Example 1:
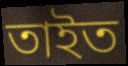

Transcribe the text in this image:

তাইত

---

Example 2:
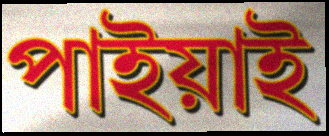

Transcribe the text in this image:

পাইয়াই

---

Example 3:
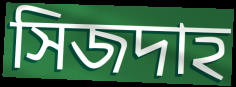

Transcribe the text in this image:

সিজদাহ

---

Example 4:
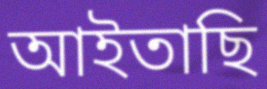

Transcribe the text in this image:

আইতাছি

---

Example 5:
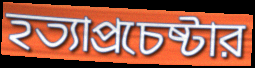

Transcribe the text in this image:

হত্যাপ্রচেষ্টার